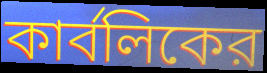
কার্বলিকের